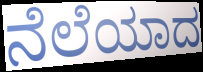
ನೆಲೆಯಾದ